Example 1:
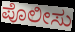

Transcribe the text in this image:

ಪೊಲೀಸು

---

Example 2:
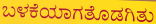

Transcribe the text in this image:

ಬಳಕೆಯಾಗತೊಡಗಿತು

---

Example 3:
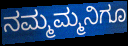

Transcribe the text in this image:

ನಮ್ಮಮ್ಮನಿಗೂ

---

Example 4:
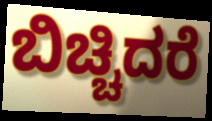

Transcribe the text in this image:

ಬಿಚ್ಚಿದರೆ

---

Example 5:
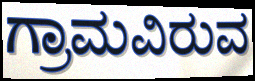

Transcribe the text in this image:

ಗ್ರಾಮವಿರುವ